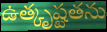
ఉత్కృష్టతను